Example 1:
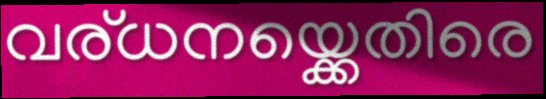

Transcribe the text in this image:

വര്ധനയ്ക്കെതിരെ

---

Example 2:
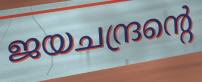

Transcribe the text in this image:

ജയചന്ദ്രന്റെ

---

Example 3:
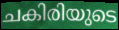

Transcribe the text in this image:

ചകിരിയുടെ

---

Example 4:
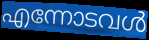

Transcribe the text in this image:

എന്നോടവൾ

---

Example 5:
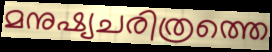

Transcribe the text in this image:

മനുഷ്യചരിത്രത്തെ